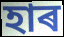
হাৰ